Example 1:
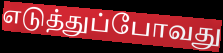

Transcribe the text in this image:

எடுத்துப்போவது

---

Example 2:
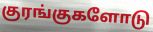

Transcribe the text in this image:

குரங்குகளோடு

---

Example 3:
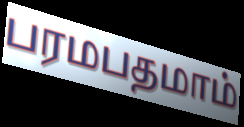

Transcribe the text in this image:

பரமபதமாம்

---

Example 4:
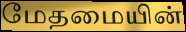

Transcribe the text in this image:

மேதமையின்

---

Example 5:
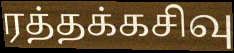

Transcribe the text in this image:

ரத்தக்கசிவு